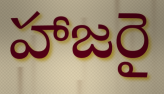
హాజరై